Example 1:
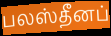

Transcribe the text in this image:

பலஸ்தீனப்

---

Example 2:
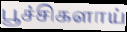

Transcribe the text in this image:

பூச்சிகளாய்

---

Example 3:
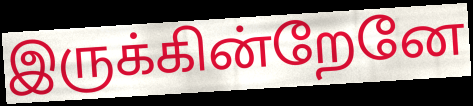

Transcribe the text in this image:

இருக்கின்றேனே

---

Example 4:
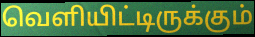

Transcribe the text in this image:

வெளியிட்டிருக்கும்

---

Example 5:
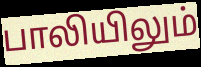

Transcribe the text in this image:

பாலியிலும்